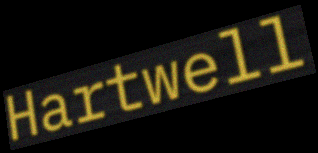
Hartwell